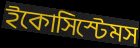
ইকোসিস্টেমস